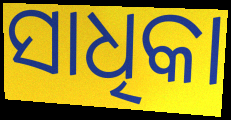
ସାଧିକା